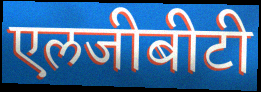
एलजीबीटी